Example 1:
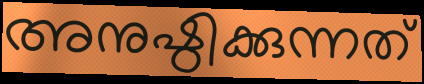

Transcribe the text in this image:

അനുഷ്ഠിക്കുന്നത്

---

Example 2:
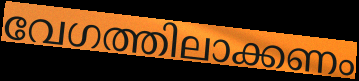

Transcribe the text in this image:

വേഗത്തിലാക്കണം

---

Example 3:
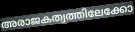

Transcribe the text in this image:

അരാജകത്വത്തിലേക്കോ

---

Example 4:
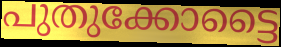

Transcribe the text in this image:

പുതുക്കോട്ടൈ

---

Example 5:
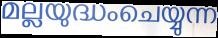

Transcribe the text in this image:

മല്ലയുദ്ധംചെയ്യുന്ന